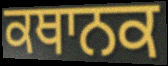
ਕਥਾਨਕ